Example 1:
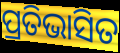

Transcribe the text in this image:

ପ୍ରତିଭାସିତ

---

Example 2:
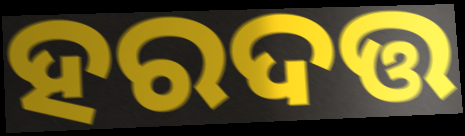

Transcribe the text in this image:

ହରଦତ୍ତ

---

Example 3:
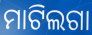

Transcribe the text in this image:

ମାଟିଲଗା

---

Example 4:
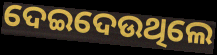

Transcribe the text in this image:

ଦେଇଦେଉଥିଲେ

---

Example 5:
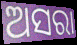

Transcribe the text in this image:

ଅସରା